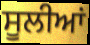
ਸੂਲੀਆਂ